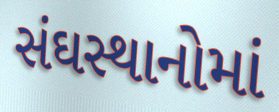
સંઘસ્થાનોમાં